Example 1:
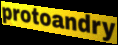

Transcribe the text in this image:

protoandry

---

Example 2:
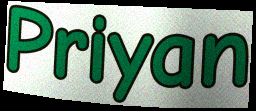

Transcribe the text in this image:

Priyan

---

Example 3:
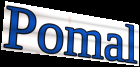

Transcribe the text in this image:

Pomal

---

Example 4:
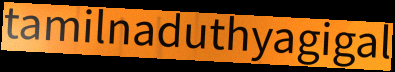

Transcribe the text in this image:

tamilnaduthyagigal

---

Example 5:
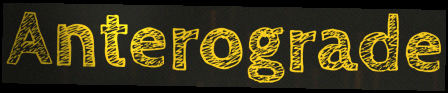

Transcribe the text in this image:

Anterograde